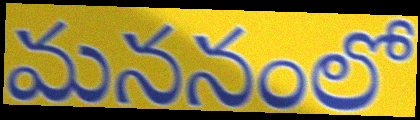
మననంలో